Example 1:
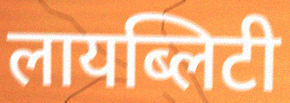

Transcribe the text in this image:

लायब्लिटी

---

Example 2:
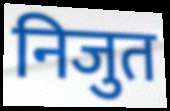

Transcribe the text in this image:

निजुत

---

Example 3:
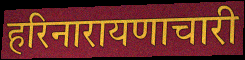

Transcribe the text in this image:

हरिनारायणाचारी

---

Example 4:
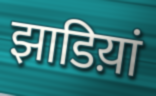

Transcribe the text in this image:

झाडिय़ां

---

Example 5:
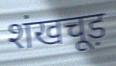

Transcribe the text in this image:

शंखचूड़